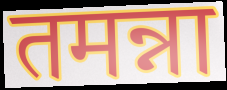
तमन्ना